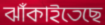
ঝাঁকাইতেছে